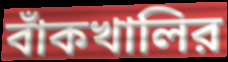
বাঁকখালির